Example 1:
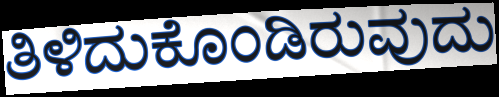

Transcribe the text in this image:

ತಿಳಿದುಕೊಂಡಿರುವುದು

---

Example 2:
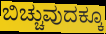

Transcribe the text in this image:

ಬಿಚ್ಚುವುದಕ್ಕೂ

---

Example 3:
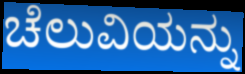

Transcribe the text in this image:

ಚೆಲುವಿಯನ್ನು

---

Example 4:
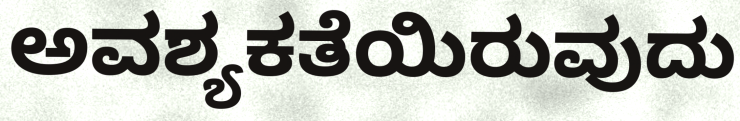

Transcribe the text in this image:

ಅವಶ್ಯಕತೆಯಿರುವುದು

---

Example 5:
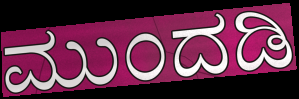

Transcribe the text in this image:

ಮುಂದಡಿ